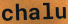
chalu